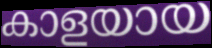
കാളയായ